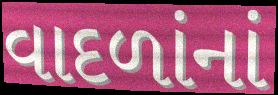
વાદળાંનાં